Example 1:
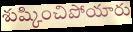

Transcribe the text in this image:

శుష్కించిపోయారు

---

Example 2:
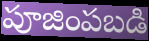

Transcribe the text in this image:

పూజింపబడి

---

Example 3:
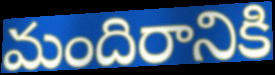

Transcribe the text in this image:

మందిరానికి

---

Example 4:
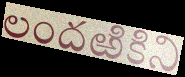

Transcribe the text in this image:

లందఱికిని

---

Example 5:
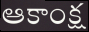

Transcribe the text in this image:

ఆకాంక్ష